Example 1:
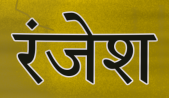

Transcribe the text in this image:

रंजेश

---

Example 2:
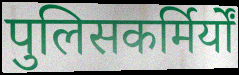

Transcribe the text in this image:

पुलिसकर्मिर्यों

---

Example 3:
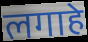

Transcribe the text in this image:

लगाहे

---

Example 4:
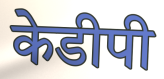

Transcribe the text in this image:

केडीपी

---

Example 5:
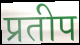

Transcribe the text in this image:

प्रतीप